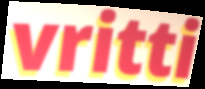
vritti